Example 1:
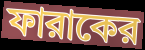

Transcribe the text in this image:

ফারাকের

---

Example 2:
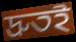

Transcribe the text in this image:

দ্রুতই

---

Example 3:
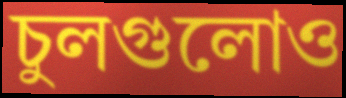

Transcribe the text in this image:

চুলগুলোও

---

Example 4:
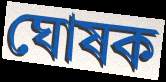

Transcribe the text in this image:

ঘোষক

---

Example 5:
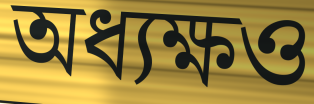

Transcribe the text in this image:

অধ্যক্ষও